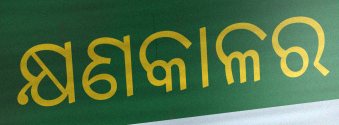
କ୍ଷଣକାଳର